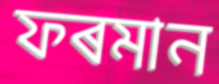
ফৰমান